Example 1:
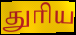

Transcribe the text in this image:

துரிய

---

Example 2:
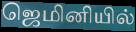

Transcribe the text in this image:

ஜெமினியில்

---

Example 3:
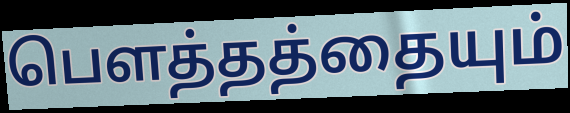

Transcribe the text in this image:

பெளத்தத்தையும்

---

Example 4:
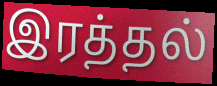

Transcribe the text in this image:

இரத்தல்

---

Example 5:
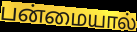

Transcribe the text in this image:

பன்மையால்